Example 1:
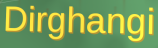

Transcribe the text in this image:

Dirghangi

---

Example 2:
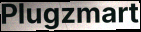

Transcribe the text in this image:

Plugzmart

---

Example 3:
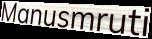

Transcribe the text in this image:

Manusmruti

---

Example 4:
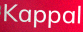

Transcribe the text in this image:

Kappal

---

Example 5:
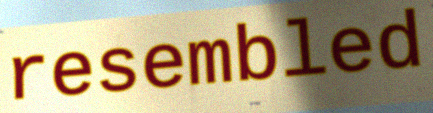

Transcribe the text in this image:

resembled